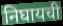
निघायची